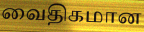
வைதிகமான